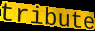
tribute